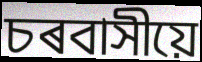
চৰবাসীয়ে